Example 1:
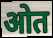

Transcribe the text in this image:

ओत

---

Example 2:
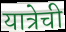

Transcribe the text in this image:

यात्रेची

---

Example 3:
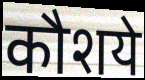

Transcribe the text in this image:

कौशये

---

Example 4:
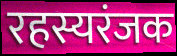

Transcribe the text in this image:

रहस्यरंजक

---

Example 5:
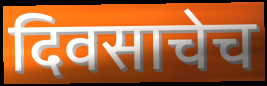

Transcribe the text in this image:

दिवसाचेच